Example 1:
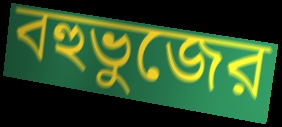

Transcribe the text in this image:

বহুভুজের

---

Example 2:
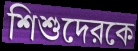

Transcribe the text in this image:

শিশুদেরকে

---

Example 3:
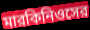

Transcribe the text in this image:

মারকিনিওসের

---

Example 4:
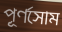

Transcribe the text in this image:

পূর্ণসোম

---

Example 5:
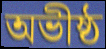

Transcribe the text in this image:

অভীষ্ঠ